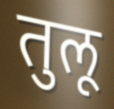
तुलू